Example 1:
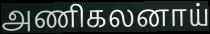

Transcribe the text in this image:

அணிகலனாய்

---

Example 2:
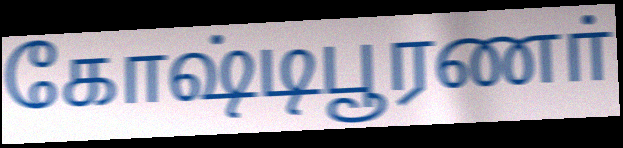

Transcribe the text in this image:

கோஷ்டிபூரணர்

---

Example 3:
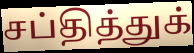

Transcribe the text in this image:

சப்தித்துக்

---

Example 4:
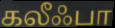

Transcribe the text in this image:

கலீஃபா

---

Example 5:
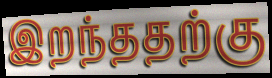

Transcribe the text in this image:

இறந்ததற்கு